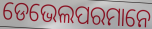
ଡେଭେଲପରମାନେ